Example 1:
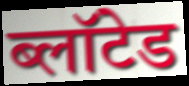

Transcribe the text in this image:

ब्लॉटेड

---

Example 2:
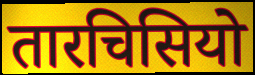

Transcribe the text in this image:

तारचिसियो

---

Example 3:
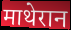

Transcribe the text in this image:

माथेरान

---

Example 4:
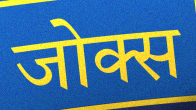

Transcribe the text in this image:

जोक्स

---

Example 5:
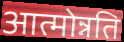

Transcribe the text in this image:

आत्मोन्नति